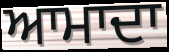
ਆਮਾਦਾ